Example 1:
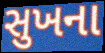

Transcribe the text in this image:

સુખના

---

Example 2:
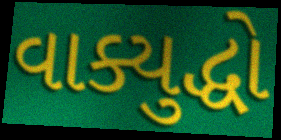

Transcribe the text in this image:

વાક્યુદ્ધો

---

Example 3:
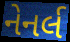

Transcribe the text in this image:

નેનર્લ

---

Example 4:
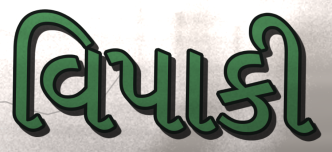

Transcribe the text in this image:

વિપાકી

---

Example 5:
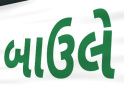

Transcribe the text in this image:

બાઉલે